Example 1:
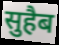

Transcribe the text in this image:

सुहैब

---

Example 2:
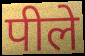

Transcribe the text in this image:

पीले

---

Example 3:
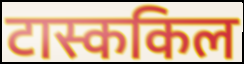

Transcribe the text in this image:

टास्ककिल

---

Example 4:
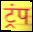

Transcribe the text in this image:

ट्रंप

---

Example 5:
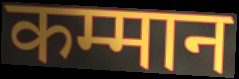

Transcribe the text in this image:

कम्मान